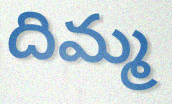
దిమ్మ